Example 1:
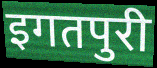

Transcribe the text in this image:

इगतपुरी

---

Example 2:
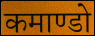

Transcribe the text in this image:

कमाण्डो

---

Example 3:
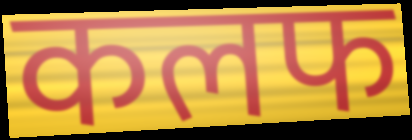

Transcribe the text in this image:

कलफ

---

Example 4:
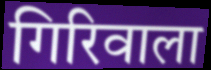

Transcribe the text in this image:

गिरिवाला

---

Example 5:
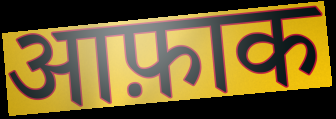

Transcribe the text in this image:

आफ़ाक